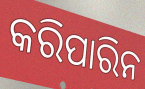
କରିପାରିନ